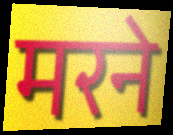
मरने